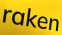
raken